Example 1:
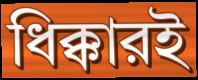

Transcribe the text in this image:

ধিক্কারই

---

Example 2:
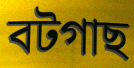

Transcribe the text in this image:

বটগাছ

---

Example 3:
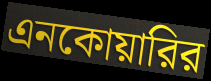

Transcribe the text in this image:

এনকোয়ারির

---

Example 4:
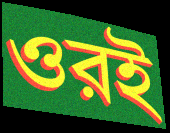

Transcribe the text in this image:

ওরই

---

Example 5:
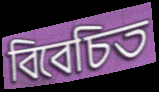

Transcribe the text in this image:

বিবেচিত